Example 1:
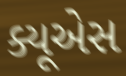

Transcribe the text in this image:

ક્યૂએસ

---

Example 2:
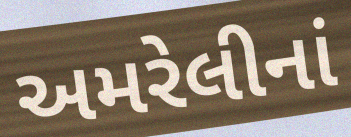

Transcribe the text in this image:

અમરેલીનાં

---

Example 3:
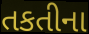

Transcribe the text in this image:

તકતીના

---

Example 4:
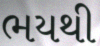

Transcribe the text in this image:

ભયથી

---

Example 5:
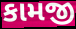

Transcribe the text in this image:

કામજી